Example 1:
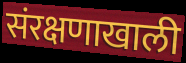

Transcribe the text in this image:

संरक्षणाखाली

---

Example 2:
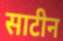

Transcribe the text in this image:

साटीन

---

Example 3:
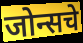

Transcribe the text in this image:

जोन्सचे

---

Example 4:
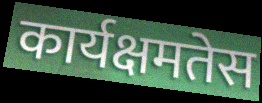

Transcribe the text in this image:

कार्यक्षमतेस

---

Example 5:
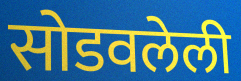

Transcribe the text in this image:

सोडवलेली